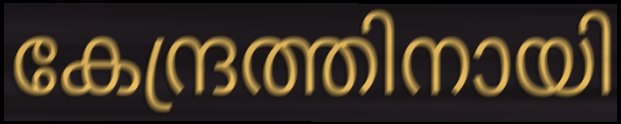
കേന്ദ്രത്തിനായി